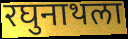
रघुनाथला